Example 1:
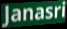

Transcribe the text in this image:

Janasri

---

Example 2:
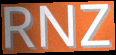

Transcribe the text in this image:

RNZ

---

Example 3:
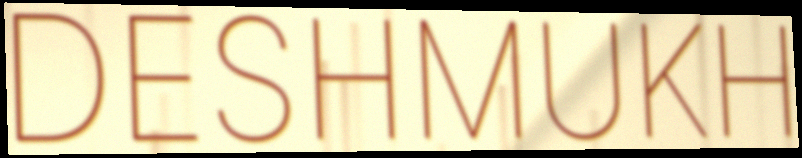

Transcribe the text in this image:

DESHMUKH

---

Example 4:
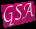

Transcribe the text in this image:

GSA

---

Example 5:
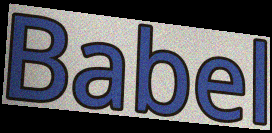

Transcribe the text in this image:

Babel